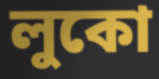
লুকো